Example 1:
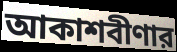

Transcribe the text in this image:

আকাশবীণার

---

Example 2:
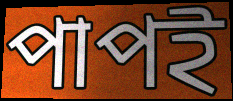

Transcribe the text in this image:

পাপই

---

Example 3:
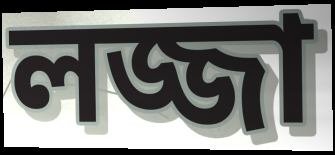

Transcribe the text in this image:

লজ্জা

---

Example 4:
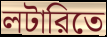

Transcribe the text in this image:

লটারিতে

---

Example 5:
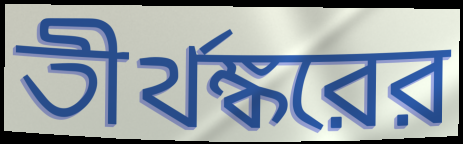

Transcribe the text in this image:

তীর্থঙ্করের